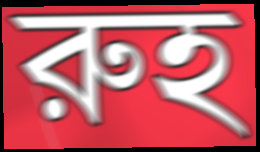
রুহ